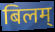
बिलम्